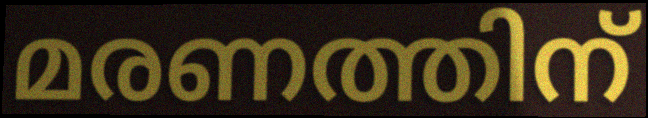
മരണത്തിന്